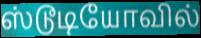
ஸ்டூடியோவில்